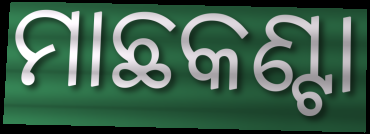
ମାଛକଣ୍ଟା